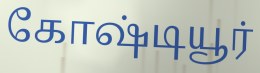
கோஷ்டியூர்